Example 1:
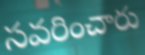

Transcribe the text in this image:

సవరించారు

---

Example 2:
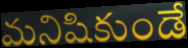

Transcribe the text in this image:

మనిషికుండే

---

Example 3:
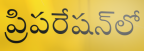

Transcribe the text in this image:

ప్రిపరేషన్‌లో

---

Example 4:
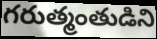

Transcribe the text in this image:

గరుత్మంతుడిని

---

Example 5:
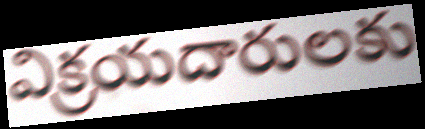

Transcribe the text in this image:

విక్రయదారులకు